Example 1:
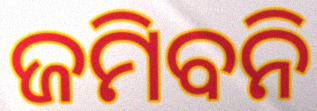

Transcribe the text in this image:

ଜମିବନି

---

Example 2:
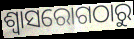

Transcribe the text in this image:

ଶ୍ୱାସରୋଗଠାରୁ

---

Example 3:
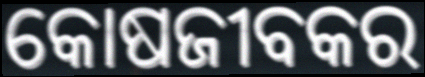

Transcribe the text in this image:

କୋଷଜୀବକର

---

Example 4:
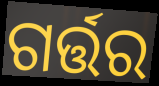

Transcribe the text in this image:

ଗର୍ତ୍ତର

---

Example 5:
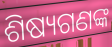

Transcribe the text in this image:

ଶିଷ୍ୟଗଣଙ୍କ